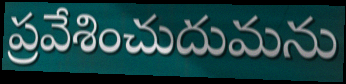
ప్రవేశించుదుమను